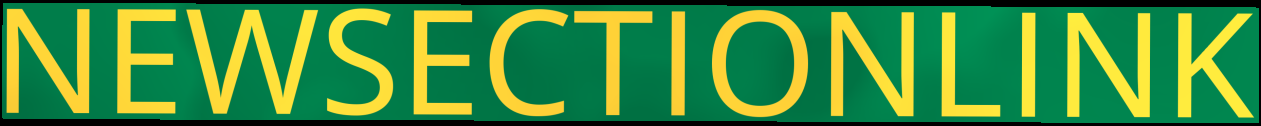
NEWSECTIONLINK